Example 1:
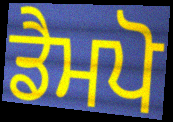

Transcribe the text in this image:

ਡੈਮਪੋ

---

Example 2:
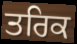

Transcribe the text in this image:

ਤਰਿਕ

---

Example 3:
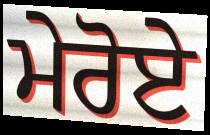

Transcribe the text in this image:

ਮੇਰੋਏ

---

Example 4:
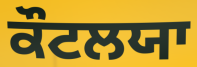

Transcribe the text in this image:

ਕੌਟਲਯਾ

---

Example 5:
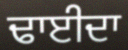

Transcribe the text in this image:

ਢਾਈਦਾ